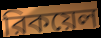
রিকয়েল